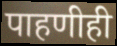
पाहणीही